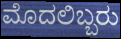
ಮೊದಲಿಬ್ಬರು